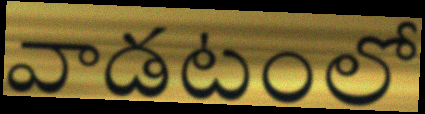
వాడటంలో